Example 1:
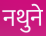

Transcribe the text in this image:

नथुने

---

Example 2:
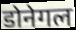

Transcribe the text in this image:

डोनेगल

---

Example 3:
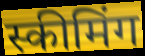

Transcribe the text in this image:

स्कीमिंग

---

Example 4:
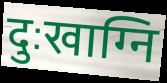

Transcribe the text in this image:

दुःखाग्नि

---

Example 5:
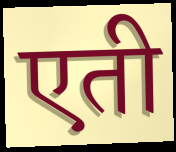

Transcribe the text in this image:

एती